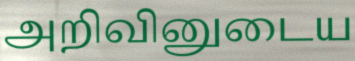
அறிவினுடைய